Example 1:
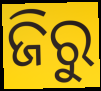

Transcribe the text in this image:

ଜିରୁ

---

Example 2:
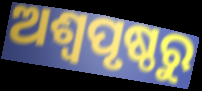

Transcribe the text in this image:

ଅଶ୍ଵପୃଷ୍ଠରୁ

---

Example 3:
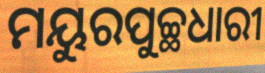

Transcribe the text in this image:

ମୟୁରପୁଚ୍ଛଧାରୀ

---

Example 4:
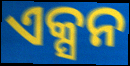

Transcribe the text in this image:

ଏକ୍ସନ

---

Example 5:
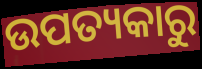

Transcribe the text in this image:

ଉପତ୍ୟକାରୁ